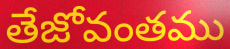
తేజోవంతము